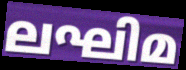
ലഘിമ